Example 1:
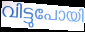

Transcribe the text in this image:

വിട്ടുപോയി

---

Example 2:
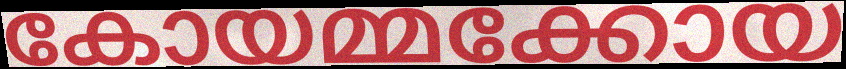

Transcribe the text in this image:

കോയമ്മക്കോയ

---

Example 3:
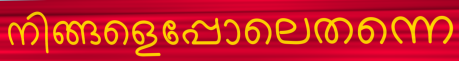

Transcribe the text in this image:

നിങ്ങളെപ്പോലെതന്നെ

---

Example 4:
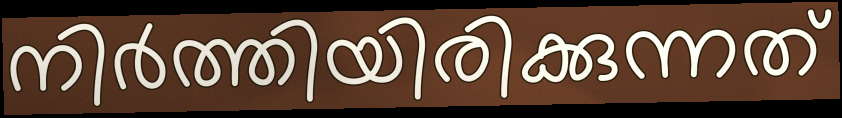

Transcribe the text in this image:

നിർത്തിയിരിക്കുന്നത്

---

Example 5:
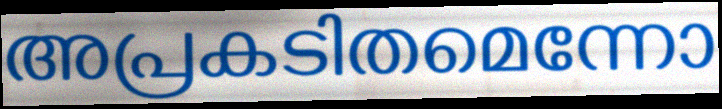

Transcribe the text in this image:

അപ്രകടിതമെന്നോ